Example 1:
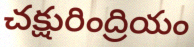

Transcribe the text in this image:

చక్షురింద్రియం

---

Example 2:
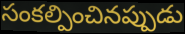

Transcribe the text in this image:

సంకల్పించినప్పుడు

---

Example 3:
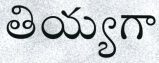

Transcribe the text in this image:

తియ్యగా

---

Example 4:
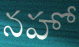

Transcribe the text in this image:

నహో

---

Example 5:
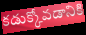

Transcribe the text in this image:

కడుక్కోవడానికి